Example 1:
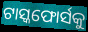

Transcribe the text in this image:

ଟାସ୍କଫୋର୍ସକୁ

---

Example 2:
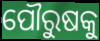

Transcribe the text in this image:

ପୌରୁଷକୁ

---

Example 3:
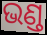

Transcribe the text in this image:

ଭଣ୍ଡ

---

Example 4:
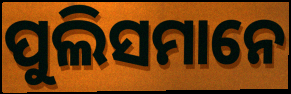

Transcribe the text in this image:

ପୁଲିସମାନେ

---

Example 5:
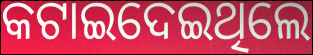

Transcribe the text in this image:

କଟାଇଦେଇଥିଲେ